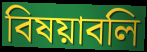
বিষয়াবলি